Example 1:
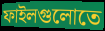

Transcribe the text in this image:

ফাইলগুলোতে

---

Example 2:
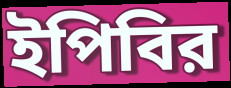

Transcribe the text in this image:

ইপিবির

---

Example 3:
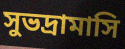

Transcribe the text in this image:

সুভদ্রামাসি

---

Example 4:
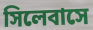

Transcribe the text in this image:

সিলেবাসে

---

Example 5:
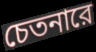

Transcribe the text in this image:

চেতনারে